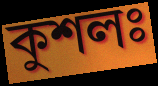
কুশলঃ